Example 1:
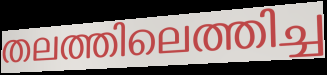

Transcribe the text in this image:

തലത്തിലെത്തിച്ച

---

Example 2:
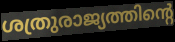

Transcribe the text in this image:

ശത്രുരാജ്യത്തിന്റെ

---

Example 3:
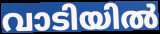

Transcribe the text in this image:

വാടിയിൽ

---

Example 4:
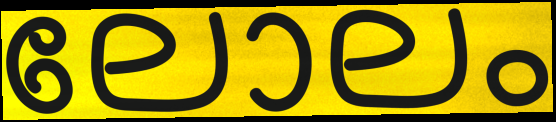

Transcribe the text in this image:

ലോലം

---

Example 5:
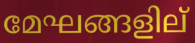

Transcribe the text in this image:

മേഘങ്ങളില്